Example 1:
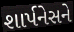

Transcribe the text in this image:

શાર્પનેસને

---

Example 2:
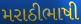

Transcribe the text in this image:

મરાઠીભાષી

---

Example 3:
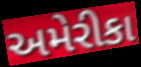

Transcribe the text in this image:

અમેરીકા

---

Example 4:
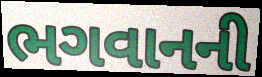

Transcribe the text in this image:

ભગવાનની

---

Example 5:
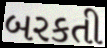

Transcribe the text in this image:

બરકતી